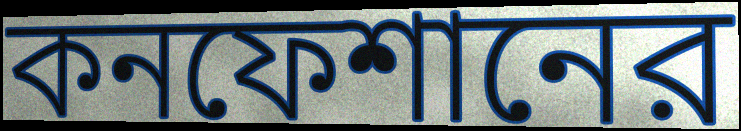
কনফেশানের